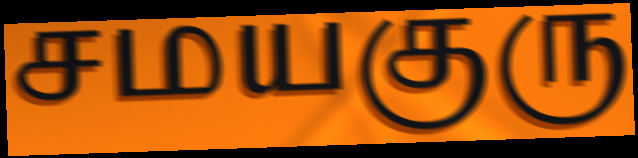
சமயகுரு